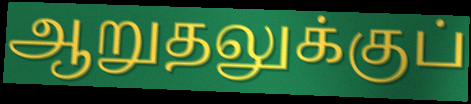
ஆறுதலுக்குப்